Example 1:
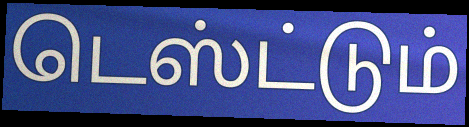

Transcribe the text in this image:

டெஸ்ட்டும்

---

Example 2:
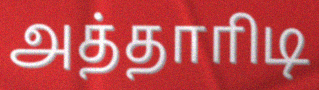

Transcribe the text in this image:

அத்தாரிடி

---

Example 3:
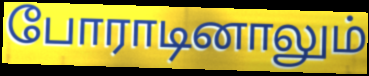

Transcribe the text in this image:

போராடினாலும்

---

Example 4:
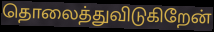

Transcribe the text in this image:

தொலைத்துவிடுகிறேன்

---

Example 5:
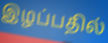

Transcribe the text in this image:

இழப்பதில்